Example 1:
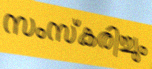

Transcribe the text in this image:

സംസ്കരിച്ചും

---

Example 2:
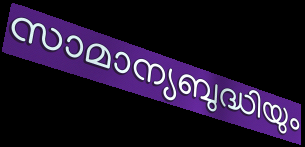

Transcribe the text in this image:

സാമാന്യബുദ്ധിയും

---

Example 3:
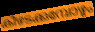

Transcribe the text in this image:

കീഴടക്കുമ്പോഴും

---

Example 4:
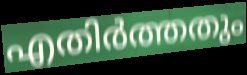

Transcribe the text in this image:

എതിർത്തതും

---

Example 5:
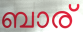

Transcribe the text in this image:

ബാര്